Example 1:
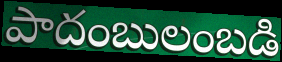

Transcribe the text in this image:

పాదంబులంబడి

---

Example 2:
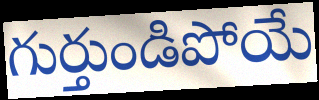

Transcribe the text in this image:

గుర్తుండిపోయే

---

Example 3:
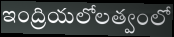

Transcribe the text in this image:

ఇంద్రియలోలత్వంలో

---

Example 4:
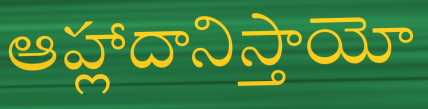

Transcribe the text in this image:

ఆహ్లాదానిస్తాయో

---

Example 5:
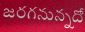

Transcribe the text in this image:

జరగనున్నదో